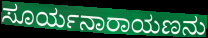
ಸೂರ್ಯನಾರಾಯಣನು